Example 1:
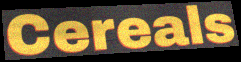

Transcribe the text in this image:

Cereals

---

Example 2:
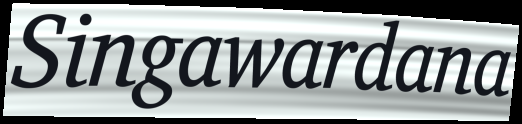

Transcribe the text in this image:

Singawardana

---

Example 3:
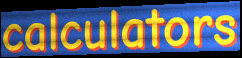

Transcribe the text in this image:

calculators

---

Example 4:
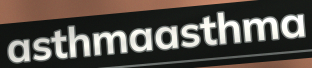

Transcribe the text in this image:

asthmaasthma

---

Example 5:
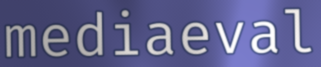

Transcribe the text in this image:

mediaeval